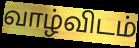
வாழ்விடம்